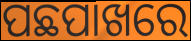
ପଛପାଖରେ